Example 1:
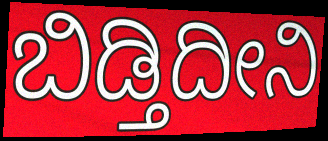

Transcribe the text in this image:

ಬಿಡ್ತಿದೀನಿ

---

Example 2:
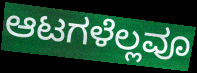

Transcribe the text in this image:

ಆಟಗಳೆಲ್ಲವೂ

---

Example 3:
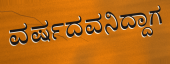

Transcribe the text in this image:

ವರ್ಷದವನಿದ್ದಾಗ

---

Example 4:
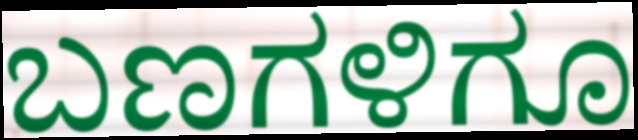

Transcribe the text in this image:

ಬಣಗಳಿಗೂ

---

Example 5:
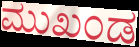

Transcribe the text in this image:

ಮುಖಂಡ